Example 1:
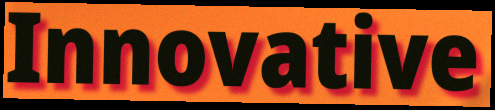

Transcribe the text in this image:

Innovative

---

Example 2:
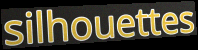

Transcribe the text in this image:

silhouettes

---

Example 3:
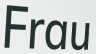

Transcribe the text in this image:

Frau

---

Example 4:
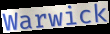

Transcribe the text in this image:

Warwick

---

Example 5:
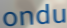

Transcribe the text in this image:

ondu